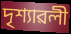
দৃশ্যাৱলী